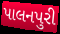
પાલનપુરી